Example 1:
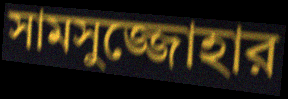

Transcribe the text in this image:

সামসুজ্জোহার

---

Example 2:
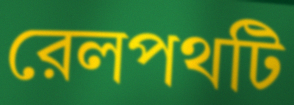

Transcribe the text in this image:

রেলপথটি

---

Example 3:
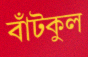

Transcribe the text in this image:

বাঁটকুল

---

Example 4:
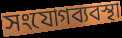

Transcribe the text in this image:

সংযোগব্যবস্থা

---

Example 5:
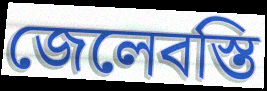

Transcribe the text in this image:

জেলেবস্তি